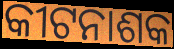
କୀଟନାଶକ